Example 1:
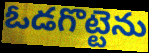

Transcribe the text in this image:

ఓడగొట్టెను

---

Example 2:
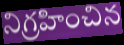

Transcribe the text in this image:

నిగ్రహించిన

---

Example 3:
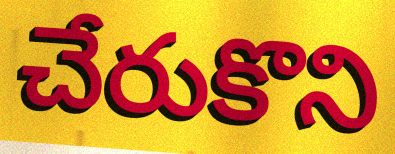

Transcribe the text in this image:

చేరుకొని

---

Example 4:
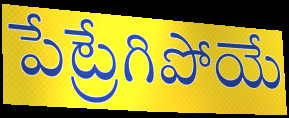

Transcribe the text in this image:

పేట్రేగిపోయే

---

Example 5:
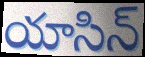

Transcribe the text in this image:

యాసిన్